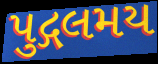
પુદ્ગલમય